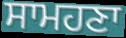
ਸਾਮਹਣਾ